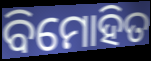
ବିମୋହିତ